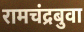
रामचंद्रबुवा